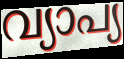
വ്യാപ്യ